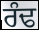
ਰੰਢ